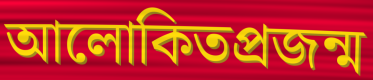
আলোকিতপ্রজন্ম